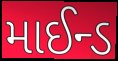
માઈન્ડ